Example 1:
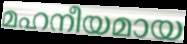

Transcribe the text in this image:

മഹനീയമായ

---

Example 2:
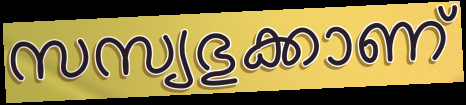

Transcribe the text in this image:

സസ്യഭുക്കാണ്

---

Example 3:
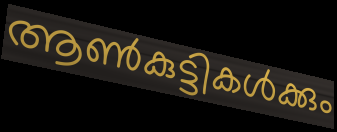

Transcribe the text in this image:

ആൺകുട്ടികൾക്കും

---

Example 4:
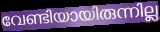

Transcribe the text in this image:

വേണ്ടിയായിരുന്നില്ല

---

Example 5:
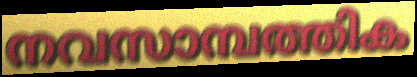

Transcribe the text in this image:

നവസാമ്പത്തിക